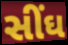
સીંઘ